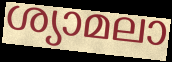
ശ്യാമലാ